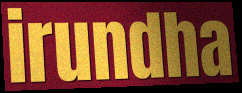
irundha